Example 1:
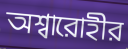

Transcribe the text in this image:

অশ্বারোহীর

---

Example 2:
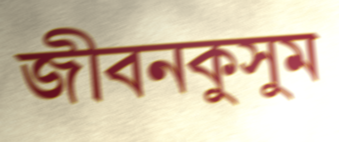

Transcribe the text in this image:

জীবনকুসুম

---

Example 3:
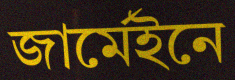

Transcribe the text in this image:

জার্মেইনে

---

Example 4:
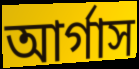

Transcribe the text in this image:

আর্গাস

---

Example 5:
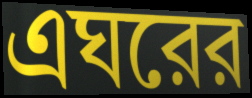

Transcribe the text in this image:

এঘরের